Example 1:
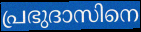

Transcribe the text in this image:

പ്രഭുദാസിനെ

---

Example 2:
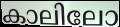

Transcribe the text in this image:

കാലിലോ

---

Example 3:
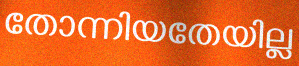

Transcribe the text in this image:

തോന്നിയതേയില്ല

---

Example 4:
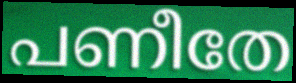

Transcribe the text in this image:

പണീതേ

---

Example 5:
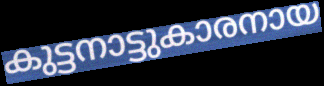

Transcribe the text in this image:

കുട്ടനാട്ടുകാരനായ